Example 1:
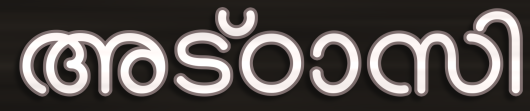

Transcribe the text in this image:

അട്ഠാസി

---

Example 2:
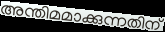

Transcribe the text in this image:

അന്തിമമാക്കുന്നതിന്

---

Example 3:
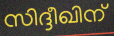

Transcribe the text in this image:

സിദ്ദീഖിന്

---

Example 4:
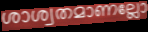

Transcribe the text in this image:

ശാശ്വതമാണല്ലോ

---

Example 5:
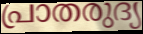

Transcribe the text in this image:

പ്രാതരുദ്യ